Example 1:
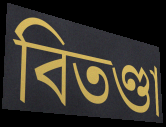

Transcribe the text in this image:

বিতণ্ডা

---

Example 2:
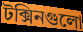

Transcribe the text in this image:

টক্সিনগুলো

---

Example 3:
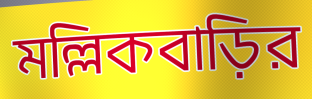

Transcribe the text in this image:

মল্লিকবাড়ির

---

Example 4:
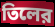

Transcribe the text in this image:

তিলের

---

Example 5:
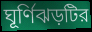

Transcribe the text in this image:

ঘূর্ণিঝড়টির